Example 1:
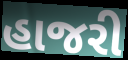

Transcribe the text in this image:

હાજરી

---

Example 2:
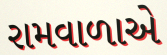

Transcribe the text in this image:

રામવાળાએ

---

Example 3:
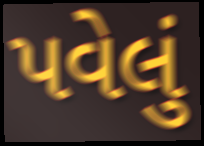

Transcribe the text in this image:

પવેલું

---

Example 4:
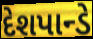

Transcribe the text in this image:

દેશપાન્ડે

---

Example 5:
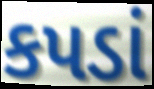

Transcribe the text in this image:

કપડાં